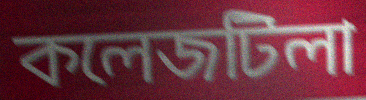
কলেজটিলা